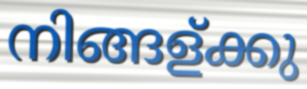
നിങ്ങള്ക്കു